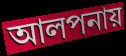
আলপনায়